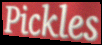
Pickles